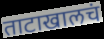
ताटाखालचं